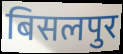
बिसलपुर